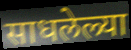
साधलेल्या